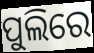
ପୁଲିରେ